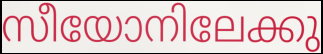
സീയോനിലേക്കു